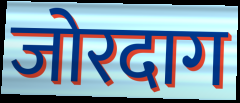
जोरदाग